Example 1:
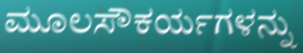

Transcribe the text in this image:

ಮೂಲಸೌಕರ್ಯಗಳನ್ನು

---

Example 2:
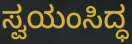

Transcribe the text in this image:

ಸ್ವಯಂಸಿದ್ಧ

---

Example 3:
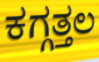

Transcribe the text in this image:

ಕಗ್ಗತ್ತಲ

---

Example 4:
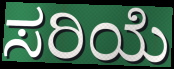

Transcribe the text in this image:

ಸರಿಯೆ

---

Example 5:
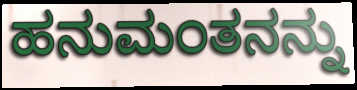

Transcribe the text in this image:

ಹನುಮಂತನನ್ನು